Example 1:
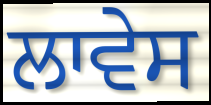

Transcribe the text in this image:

ਲਾਵੇਸ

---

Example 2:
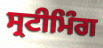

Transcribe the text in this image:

ਸ੍ਰਟੀਮਿੰਗ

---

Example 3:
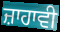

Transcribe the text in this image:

ਜ਼ਾਹਾਵੀ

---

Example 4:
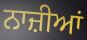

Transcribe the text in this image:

ਨਾਜ਼ੀਆਂ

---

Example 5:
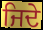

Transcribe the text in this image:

ਜਿਦੇ